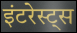
इंटरेस्ट्स